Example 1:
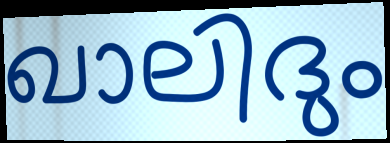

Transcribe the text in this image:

ഖാലിദും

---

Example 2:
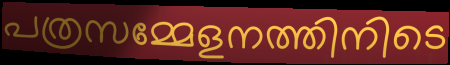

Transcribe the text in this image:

പത്രസമ്മേളനത്തിനിടെ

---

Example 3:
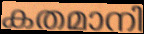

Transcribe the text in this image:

കതമാനി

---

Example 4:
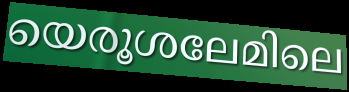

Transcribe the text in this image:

യെരൂശലേമിലെ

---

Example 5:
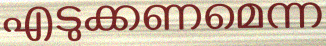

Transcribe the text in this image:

എടുക്കണമെന്ന